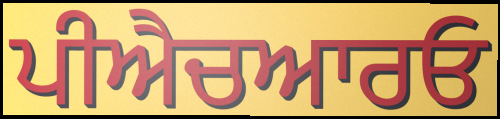
ਪੀਐਚਆਰਓ